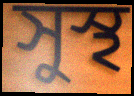
সুস্থ